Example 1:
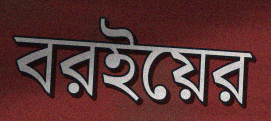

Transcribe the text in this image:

বরইয়ের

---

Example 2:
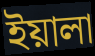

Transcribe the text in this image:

ইয়ালা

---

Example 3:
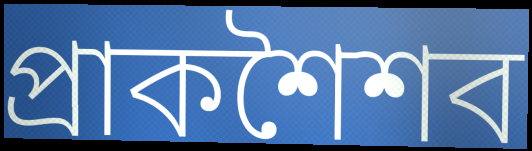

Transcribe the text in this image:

প্রাকশৈশব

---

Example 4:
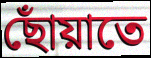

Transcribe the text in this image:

ছোঁয়াতে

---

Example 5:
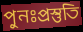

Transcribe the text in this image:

পুনঃপ্রস্তুতি